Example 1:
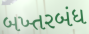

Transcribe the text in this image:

બખ્તરબંધ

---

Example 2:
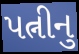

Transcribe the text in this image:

પત્નીનુ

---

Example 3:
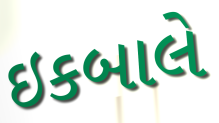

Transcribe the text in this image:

ઇકબાલે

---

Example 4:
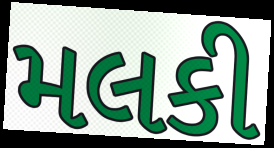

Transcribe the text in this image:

મલકી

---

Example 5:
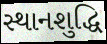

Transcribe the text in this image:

સ્થાનશુદ્ધિ